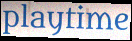
playtime